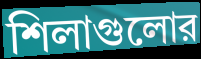
শিলাগুলোর